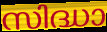
സിദ്ധാ